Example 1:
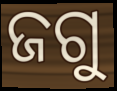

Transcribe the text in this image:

ଜଗୁ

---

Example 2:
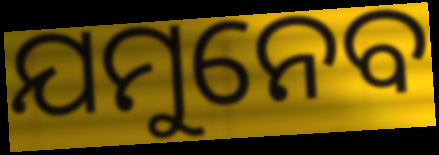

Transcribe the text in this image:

ଯମୁନେବ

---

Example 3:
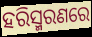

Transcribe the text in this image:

ହରିସ୍ମରଣରେ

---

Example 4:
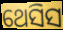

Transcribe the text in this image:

ଥେସିସ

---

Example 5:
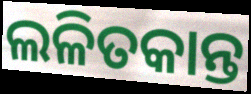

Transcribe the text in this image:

ଲଳିତକାନ୍ତ